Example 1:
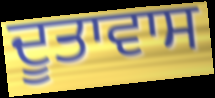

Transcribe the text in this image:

ਦੂਤਾਵਾਸ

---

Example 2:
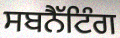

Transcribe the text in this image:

ਸਬਨੈੱਟਿੰਗ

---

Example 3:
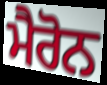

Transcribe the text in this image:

ਮੈਰੋਨ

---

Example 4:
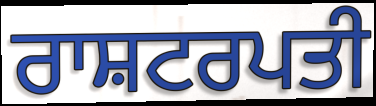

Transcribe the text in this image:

ਰਾਸ਼ਟਰਪਤੀ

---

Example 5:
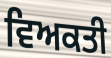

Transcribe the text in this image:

ਵਿਅਕਤੀ